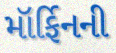
મૉર્ફિનની